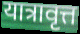
यात्रावृत्त